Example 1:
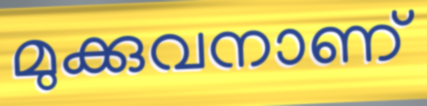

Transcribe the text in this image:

മുക്കുവനാണ്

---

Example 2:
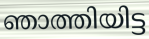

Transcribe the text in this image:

ഞാത്തിയിട്ട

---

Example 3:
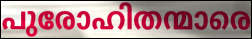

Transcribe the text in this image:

പുരോഹിതന്മാരെ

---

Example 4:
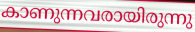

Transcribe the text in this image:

കാണുന്നവരായിരുന്നു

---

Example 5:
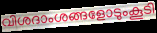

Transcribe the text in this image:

വിശദാംശങ്ങളോടുംകൂടി